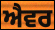
ਐਵਰ